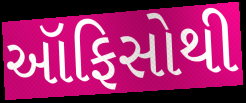
ઑફિસોથી